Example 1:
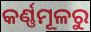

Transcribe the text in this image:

କର୍ଣ୍ଣମୂଳରୁ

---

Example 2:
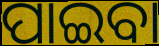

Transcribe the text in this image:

ପାଇବା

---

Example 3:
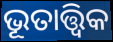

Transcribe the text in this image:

ଭୂତାତ୍ତ୍ୱିକ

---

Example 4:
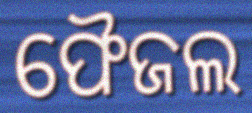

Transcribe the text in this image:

ଫୈଜଲ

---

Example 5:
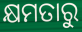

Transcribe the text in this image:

କ୍ଷମତାରୁ